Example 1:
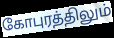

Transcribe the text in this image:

கோபுரத்திலும்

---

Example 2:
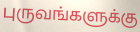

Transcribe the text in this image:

புருவங்களுக்கு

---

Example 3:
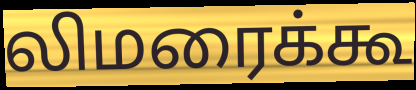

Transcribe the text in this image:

லிமரைக்கூ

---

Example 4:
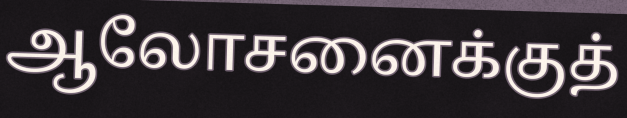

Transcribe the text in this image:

ஆலோசனைக்குத்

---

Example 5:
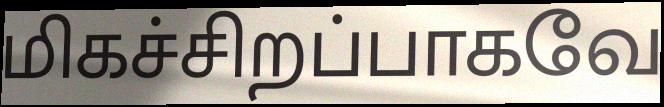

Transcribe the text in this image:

மிகச்சிறப்பாகவே